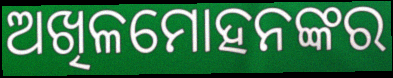
ଅଖିଳମୋହନଙ୍କର